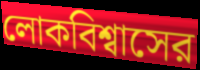
লোকবিশ্বাসের